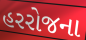
હરરોજના